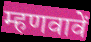
म्हणवावें